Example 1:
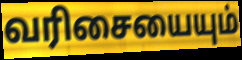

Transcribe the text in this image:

வரிசையையும்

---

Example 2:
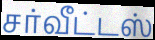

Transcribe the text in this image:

சர்வீட்டஸ்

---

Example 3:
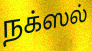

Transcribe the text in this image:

நக்ஸல்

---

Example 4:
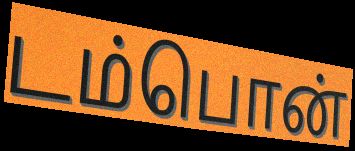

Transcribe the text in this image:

டம்பொன்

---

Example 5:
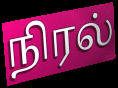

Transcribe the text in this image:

நிரல்